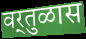
वर्तुळास